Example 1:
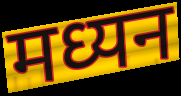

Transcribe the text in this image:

मध्यन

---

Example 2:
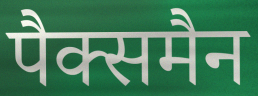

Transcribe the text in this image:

पैक्समैन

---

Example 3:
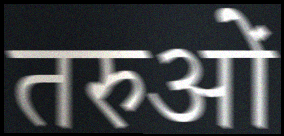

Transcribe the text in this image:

तरुओं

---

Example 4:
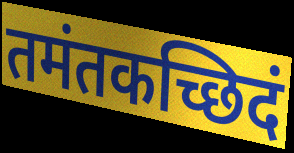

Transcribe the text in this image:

तमंतकच्छिदं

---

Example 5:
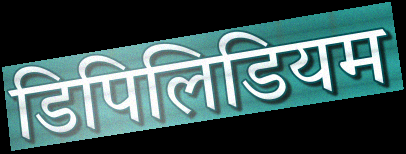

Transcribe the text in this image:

डिपिलिडियम